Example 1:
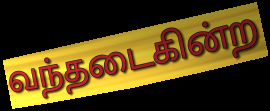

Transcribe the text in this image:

வந்தடைகின்ற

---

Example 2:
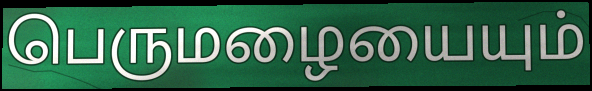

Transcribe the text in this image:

பெருமழையையும்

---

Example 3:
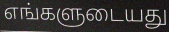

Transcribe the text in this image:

எங்களுடையது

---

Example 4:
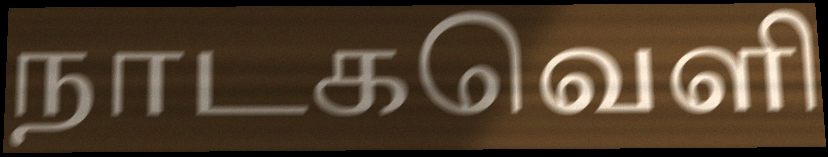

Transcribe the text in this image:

நாடகவெளி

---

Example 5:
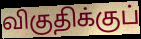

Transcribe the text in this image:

விகுதிக்குப்